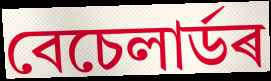
বেচেলাৰ্ডৰ